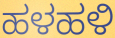
ಹಳಹಳಿ